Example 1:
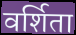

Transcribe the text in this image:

वर्शिता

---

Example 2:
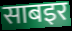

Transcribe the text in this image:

साबइर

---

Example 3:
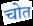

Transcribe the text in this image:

चोत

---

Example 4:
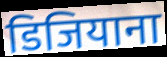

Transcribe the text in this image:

डिजियाना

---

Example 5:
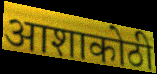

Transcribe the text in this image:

आशाकोठी